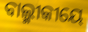
ବାଲ୍ମୀକୀୟେ